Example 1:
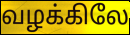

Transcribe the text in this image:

வழக்கிலே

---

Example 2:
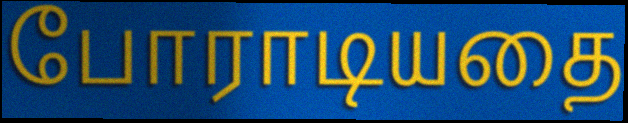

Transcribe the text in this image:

போராடியதை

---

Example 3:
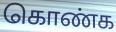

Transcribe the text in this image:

கொண்க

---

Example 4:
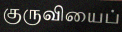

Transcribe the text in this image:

குருவியைப்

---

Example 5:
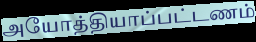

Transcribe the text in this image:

அயோத்தியாப்பட்டணம்